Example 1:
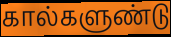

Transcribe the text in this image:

கால்களுண்டு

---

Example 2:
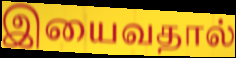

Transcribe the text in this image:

இயைவதால்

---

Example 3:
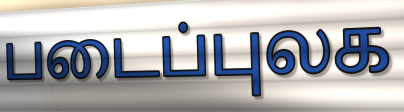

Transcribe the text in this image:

படைப்புலக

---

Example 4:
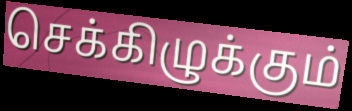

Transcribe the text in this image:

செக்கிழுக்கும்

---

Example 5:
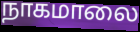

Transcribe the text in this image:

நாகமாலை